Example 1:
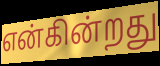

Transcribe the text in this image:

என்கின்றது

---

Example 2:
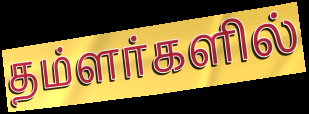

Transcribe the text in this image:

தம்ளர்களில்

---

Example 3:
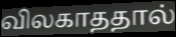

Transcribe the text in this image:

விலகாததால்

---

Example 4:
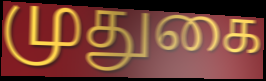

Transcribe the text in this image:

முதுகை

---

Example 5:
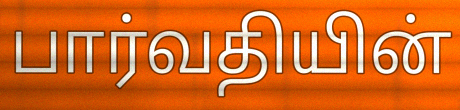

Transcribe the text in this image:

பார்வதியின்